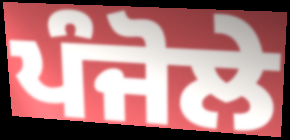
ਪੰਜੋਲੇ